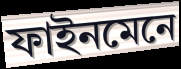
ফাইনমেনে